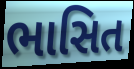
ભાસિત